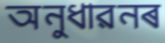
অনুধাৱনৰ